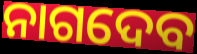
ନାଗଦେବ